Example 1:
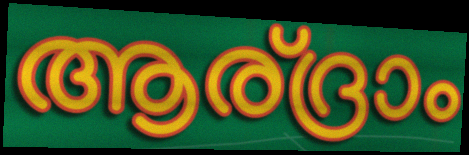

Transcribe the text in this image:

ആര്ദ്രാം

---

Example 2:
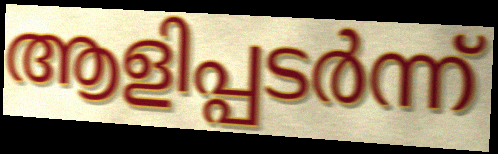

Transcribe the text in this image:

ആളിപ്പടർന്ന്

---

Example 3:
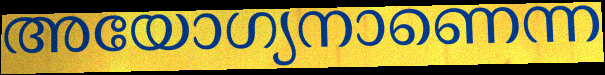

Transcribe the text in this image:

അയോഗ്യനാണെന്ന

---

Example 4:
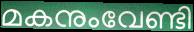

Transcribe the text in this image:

മകനുംവേണ്ടി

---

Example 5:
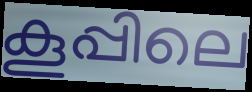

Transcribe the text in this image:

കൂപ്പിലെ